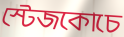
স্টেজকোচে